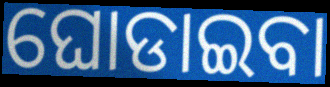
ଘୋଡାଇବା